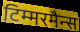
टिम्मरमैन्स